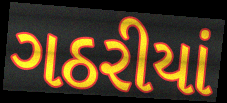
ગઠરીયાં